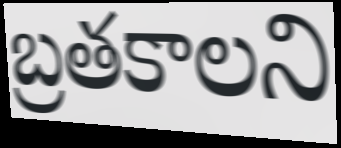
బ్రతకాలని